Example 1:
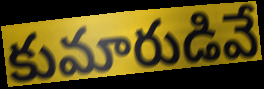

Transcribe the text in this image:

కుమారుడివే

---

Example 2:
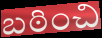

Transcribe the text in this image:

బఠించి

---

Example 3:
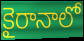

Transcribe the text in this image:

కైరానాలో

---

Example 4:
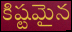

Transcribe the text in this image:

కిష్టమైన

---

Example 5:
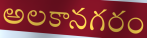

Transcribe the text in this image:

అలకానగరం